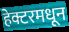
हेक्टरमधून